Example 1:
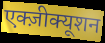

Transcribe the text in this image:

एक्ज़ीक्यूशन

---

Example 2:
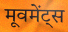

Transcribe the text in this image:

मूवमेंट्स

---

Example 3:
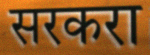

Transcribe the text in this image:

सरकरा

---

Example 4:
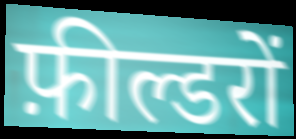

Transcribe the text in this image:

फ़ील्डरों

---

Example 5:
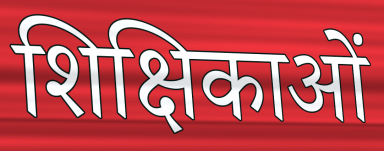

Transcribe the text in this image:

शिक्षिकाओं